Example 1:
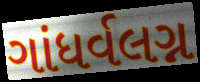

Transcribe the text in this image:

ગાંધર્વલગ્ન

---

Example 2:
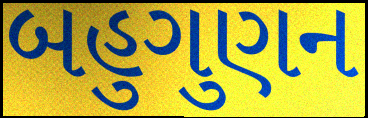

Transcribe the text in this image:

બહુગુણન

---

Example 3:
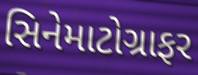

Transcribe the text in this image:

સિનેમાટોગ્રાફર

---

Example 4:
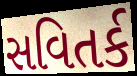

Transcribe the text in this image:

સવિતર્ક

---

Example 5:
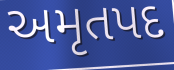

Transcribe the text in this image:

અમૃતપદ